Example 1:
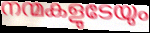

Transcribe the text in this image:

നന്മകളുടേയും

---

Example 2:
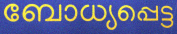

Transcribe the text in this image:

ബോധ്യപ്പെട്ട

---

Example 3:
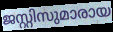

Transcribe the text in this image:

ജസ്റ്റിസുമാരായ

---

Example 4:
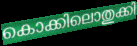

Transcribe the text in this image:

കൊക്കിലൊതുക്കി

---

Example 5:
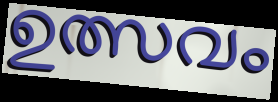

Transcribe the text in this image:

ഉത്സവം